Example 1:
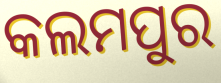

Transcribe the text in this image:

କଲମପୁର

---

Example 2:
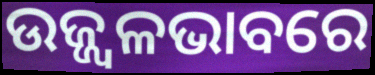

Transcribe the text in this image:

ଉଜ୍ଜ୍ୱଳଭାବରେ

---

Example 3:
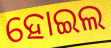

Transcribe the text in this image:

ହୋଇଲ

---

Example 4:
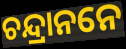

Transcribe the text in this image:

ଚନ୍ଦ୍ରାନନେ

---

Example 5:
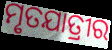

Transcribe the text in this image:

ମୃତଯାତ୍ରୀର